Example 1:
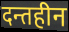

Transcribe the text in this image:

दन्तहीन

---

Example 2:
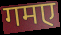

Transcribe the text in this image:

गमए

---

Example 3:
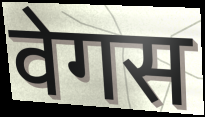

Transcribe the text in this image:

वेगस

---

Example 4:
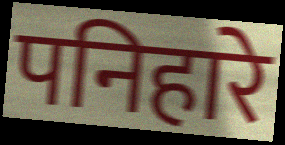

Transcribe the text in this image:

पनिहारे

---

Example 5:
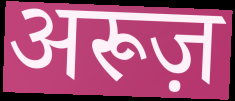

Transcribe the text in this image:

अरूज़